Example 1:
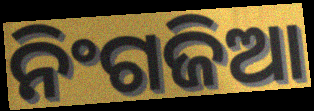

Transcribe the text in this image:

ନିଂଗଜିଆ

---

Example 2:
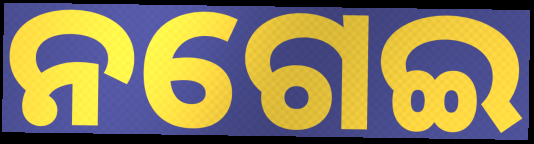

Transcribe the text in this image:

ନଗେଇ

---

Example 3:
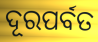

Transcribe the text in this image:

ଦୂରପର୍ବତ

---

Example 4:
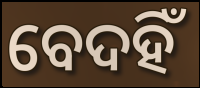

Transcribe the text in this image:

ବେଦହିଁ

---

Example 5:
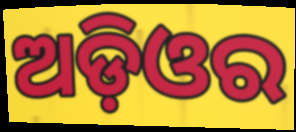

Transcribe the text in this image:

ଅଡ଼ିଓର